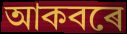
আকবৰে